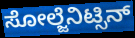
ಸೋಲ್ಜೆನಿಟ್ಸಿನ್